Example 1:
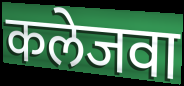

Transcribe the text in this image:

कलेजवा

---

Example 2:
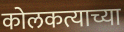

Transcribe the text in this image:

कोलकत्याच्या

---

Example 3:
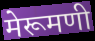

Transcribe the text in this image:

मेरूमणी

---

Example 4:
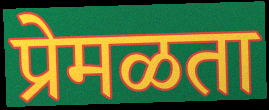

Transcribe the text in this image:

प्रेमळता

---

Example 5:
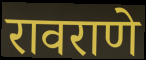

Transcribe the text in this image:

रावराणे